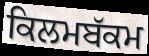
ਕਿਲਮਬੱਕਮ